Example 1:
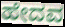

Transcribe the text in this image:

ಹೇದವ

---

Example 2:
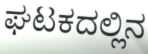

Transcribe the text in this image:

ಘಟಕದಲ್ಲಿನ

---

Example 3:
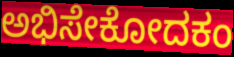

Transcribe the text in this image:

ಅಭಿಸೇಕೋದಕಂ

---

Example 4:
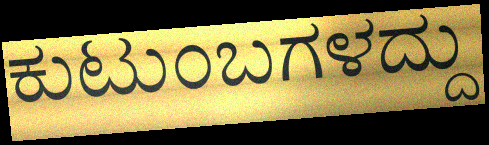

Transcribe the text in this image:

ಕುಟುಂಬಗಳದ್ದು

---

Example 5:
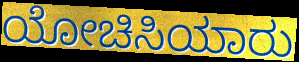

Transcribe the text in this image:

ಯೋಚಿಸಿಯಾರು